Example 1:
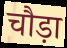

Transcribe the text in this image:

चौड़ा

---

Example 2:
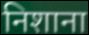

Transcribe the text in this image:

निशाना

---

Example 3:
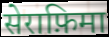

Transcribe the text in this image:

सेराफ़िमा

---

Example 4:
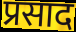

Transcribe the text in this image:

प्रसाद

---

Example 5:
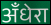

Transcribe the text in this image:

अँधेरा